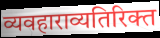
व्यवहाराव्यतिरिक्त